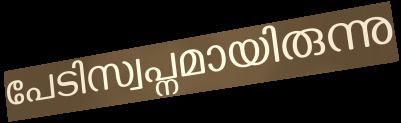
പേടിസ്വപ്നമായിരുന്നു